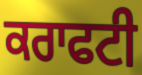
ਕਰਾਫਟੀ